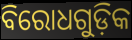
ବିରୋଧଗୁଡ଼ିକ